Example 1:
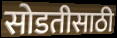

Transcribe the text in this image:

सोडतीसाठी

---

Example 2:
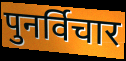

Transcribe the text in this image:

पुनर्विचार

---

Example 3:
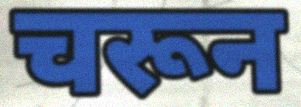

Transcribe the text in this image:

चरून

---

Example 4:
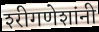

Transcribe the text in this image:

श्रीगणेशांनी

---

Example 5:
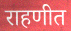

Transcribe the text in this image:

राहणीत